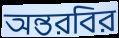
অন্তরবির